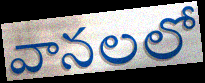
వానలలో